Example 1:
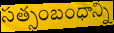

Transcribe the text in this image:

సత్సంబంధాన్ని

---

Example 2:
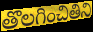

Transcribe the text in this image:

తొలగించితిని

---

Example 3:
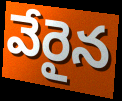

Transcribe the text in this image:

వేరైన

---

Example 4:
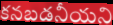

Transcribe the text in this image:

కనబడనీయని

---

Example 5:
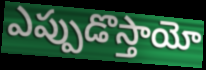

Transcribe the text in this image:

ఎప్పుడొస్తాయో